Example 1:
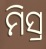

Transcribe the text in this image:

ମିସ୍ର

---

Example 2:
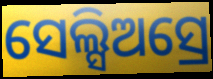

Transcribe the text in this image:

ସେଲ୍ସିଅସ୍ରେ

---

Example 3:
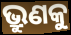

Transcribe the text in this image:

ଭ୍ରୁଣକୁ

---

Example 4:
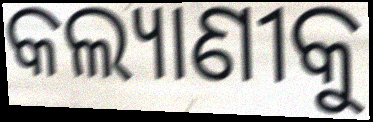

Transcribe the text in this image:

କଲ୍ୟାଣୀକୁ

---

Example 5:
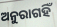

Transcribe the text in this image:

ଅନୁରାଗହିଁ